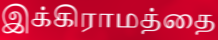
இக்கிராமத்தை